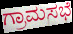
ಗ್ರಾಮಸಭೆ